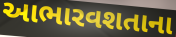
આભારવશતાના